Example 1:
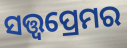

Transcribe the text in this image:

ସତ୍ତ୍ୱପ୍ରେମର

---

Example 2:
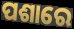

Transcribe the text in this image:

ପଶାରେ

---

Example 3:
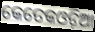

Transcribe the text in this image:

କେତେକଓଡ଼ିଆ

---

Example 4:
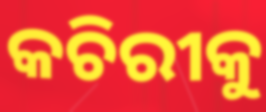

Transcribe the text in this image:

କଚିରୀକୁ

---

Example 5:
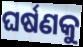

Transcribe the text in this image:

ଘର୍ଷଣକୁ